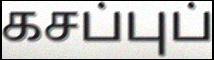
கசப்புப்